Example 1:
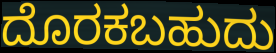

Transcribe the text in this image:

ದೊರಕಬಹುದು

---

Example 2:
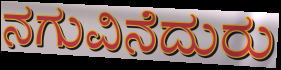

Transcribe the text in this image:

ನಗುವಿನೆದುರು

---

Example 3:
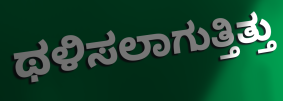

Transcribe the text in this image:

ಥಳಿಸಲಾಗುತ್ತಿತ್ತು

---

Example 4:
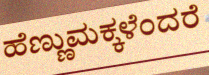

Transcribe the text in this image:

ಹೆಣ್ಣುಮಕ್ಕಳೆಂದರೆ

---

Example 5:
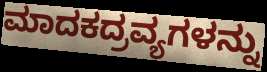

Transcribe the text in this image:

ಮಾದಕದ್ರವ್ಯಗಳನ್ನು